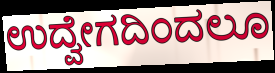
ಉದ್ವೇಗದಿಂದಲೂ